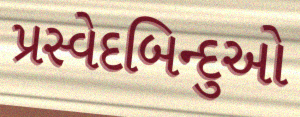
પ્રસ્વેદબિન્દુઓ